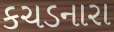
કચડનારા